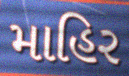
માહિર